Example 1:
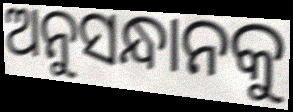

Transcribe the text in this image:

ଅନୁସନ୍ଧାନକୁ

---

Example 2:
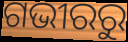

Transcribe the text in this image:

ଗଭୀରରୁ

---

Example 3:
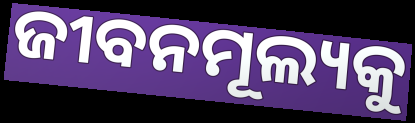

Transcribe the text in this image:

ଜୀବନମୂଲ୍ୟକୁ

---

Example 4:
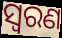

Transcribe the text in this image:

ସ୍ୱରଣ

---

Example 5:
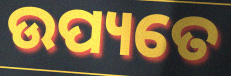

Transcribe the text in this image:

ଉପ୍ୟତେ